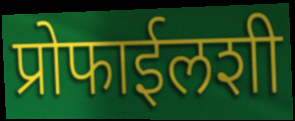
प्रोफाईलशी